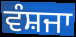
ਵੰਸ਼ਜਾ